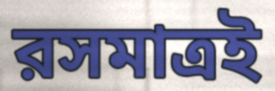
রসমাত্রই